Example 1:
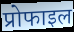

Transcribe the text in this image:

प्रोफाइल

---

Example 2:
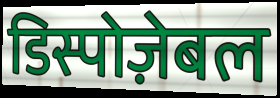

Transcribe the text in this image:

डिस्पोज़ेबल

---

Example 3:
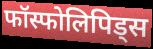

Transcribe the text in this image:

फॉस्फोलिपिड्स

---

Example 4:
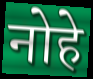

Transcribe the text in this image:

नोहे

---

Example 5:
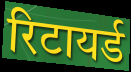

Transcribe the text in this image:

रिटायर्ड